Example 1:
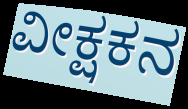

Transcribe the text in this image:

ವೀಕ್ಷಕನ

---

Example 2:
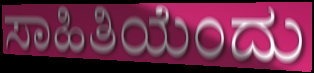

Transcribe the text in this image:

ಸಾಹಿತಿಯೆಂದು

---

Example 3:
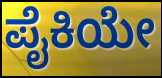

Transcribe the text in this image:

ಪೈಕಿಯೇ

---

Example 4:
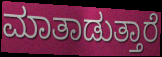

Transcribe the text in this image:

ಮಾತಾಡುತ್ತಾರೆ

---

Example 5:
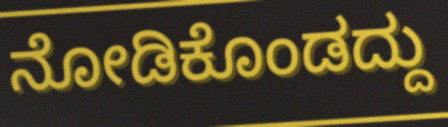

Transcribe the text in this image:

ನೋಡಿಕೊಂಡದ್ದು